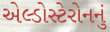
એલ્ડોસ્ટેરોનનું